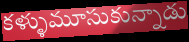
కళ్ళుమూసుకున్నాడు